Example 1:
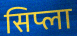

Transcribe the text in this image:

सिप्ला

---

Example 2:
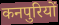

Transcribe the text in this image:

कनपुरियों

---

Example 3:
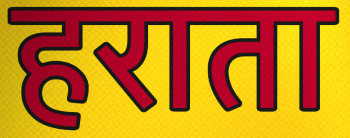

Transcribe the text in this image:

हराता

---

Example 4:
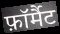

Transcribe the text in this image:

फ़ॉर्मैट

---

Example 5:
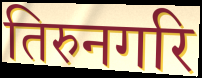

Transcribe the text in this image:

तिरुनगरि